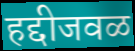
हद्दीजवळ